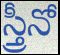
స్త్రీనో